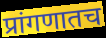
प्रांगणातच